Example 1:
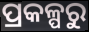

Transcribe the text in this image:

ପ୍ରକଳ୍ପରୁ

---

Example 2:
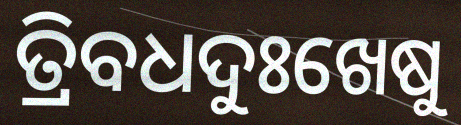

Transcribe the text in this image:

ତ୍ରିବଧଦୁଃଖେଷୁ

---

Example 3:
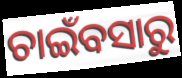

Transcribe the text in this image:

ଚାଇଁବସାରୁ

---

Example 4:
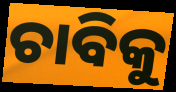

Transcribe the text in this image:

ଚାବିକୁ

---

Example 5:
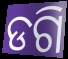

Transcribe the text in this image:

ଡଗି